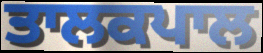
ਤਾਲਕਪਾਲ